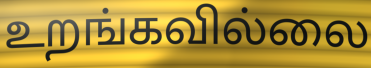
உறங்கவில்லை